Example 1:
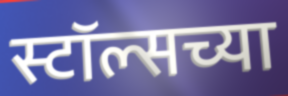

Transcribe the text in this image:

स्टॉल्सच्या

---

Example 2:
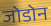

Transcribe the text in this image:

जोडोन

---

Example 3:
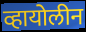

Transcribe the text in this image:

व्हायोलीन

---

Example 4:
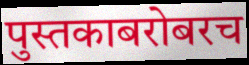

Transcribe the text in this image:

पुस्तकाबरोबरच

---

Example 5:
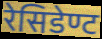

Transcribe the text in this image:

रेसिडेण्ट